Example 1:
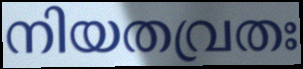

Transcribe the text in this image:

നിയതവ്രതഃ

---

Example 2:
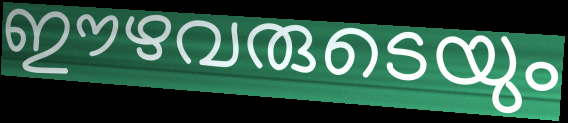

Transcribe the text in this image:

ഈഴവരുടെയും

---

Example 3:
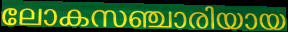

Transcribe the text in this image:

ലോകസഞ്ചാരിയായ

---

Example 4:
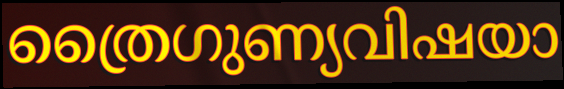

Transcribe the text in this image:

ത്രൈഗുണ്യവിഷയാ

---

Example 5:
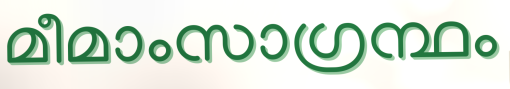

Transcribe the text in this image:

മീമാംസാഗ്രന്ഥം